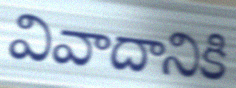
వివాదానికి